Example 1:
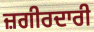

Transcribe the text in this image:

ਜ਼ਗੀਰਦਾਰੀ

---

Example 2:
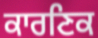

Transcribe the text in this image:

ਕਾਰਣਿਕ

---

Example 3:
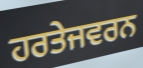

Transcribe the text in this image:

ਹਰਤੇਜਵਰਨ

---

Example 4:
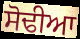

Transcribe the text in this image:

ਸੋਢੀਆ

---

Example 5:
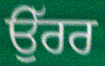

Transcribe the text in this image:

ਉੱਰਰ